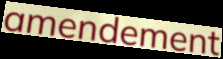
amendement